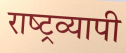
राष्‍ट्रव्‍यापी